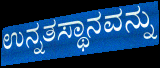
ಉನ್ನತಸ್ಥಾನವನ್ನು